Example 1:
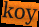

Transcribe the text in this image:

koy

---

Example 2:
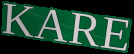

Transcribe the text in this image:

KARE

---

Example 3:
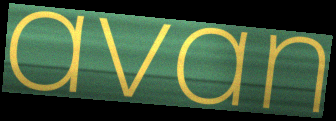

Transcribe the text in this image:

avan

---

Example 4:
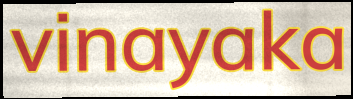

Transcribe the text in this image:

vinayaka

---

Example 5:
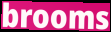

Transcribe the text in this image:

brooms